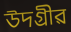
উদগ্ৰীৱ